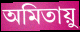
অমিতায়ু